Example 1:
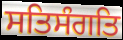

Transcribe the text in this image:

ਸਤਿਸੰਗਤਿ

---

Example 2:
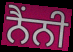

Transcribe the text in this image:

ਨੈਂਨੀ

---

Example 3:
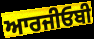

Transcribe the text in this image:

ਆਰਜੀਓਬੀ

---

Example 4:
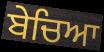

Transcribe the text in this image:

ਬੇਚਿਆ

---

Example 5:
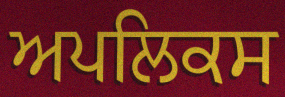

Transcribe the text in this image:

ਅਪਲਿਕਸ